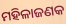
ମହିଳାଜଣକ